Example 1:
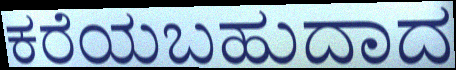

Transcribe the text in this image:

ಕರೆಯಬಹುದಾದ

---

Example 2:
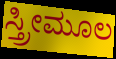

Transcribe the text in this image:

ಸ್ತ್ರೀಮೂಲ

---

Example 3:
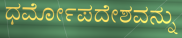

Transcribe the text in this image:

ಧರ್ಮೋಪದೇಶವನ್ನು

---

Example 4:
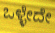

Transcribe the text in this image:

ಒಳ್ಳೇದೇ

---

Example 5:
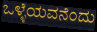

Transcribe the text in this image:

ಒಳ್ಳೆಯವನೆಂದು